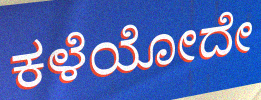
ಕಳೆಯೋದೇ